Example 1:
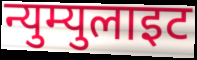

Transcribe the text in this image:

न्युम्युलाइट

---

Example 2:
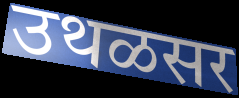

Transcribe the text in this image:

उथळसर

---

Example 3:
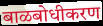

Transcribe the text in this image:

बाळबोधीकरण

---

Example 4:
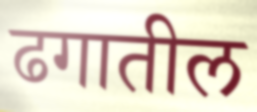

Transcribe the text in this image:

ढगातील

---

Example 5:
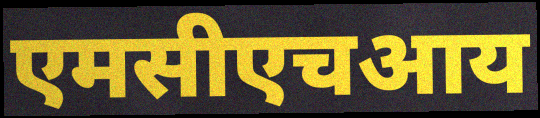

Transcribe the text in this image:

एमसीएचआय